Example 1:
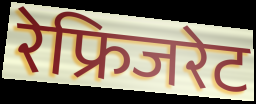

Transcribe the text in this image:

रेफ्रिजरेट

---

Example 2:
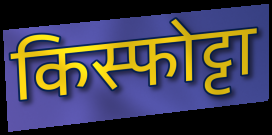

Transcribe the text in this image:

किस्फोट्टा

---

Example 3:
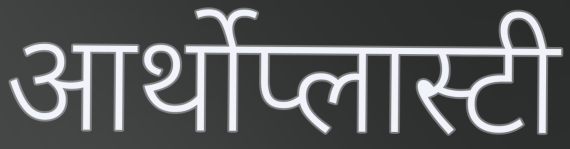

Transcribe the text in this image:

आर्थोप्लास्टी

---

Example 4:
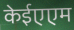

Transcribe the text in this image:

केईएएम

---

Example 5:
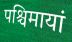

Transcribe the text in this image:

पश्चिमायां